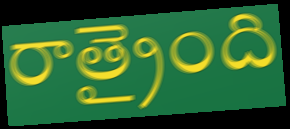
రాత్రైంది